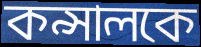
কন্সালকে